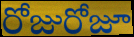
రోజురోజూ